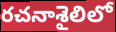
రచనాశైలిలో